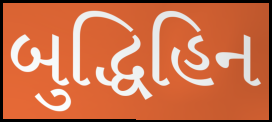
બુદ્ધિહિન